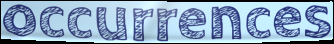
occurrences